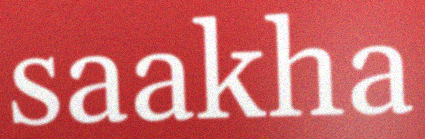
saakha